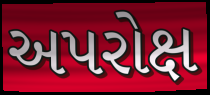
અપરોક્ષ